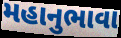
મહાનુભાવા